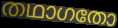
തഥാഗതോ